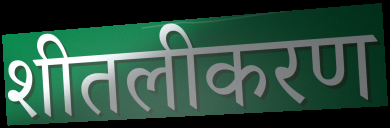
शीतलीकरण